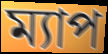
ম্যাপ